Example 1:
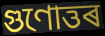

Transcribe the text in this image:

গুণোত্তৰ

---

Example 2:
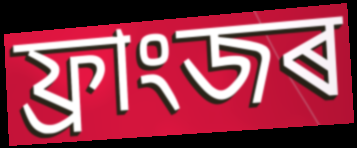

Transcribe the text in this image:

ফ্ৰাংজৰ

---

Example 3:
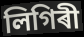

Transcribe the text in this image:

লিগিৰী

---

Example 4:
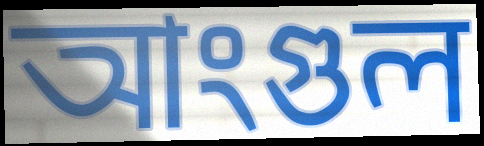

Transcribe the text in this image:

আংগুল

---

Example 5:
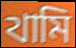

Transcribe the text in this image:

থামি